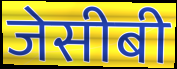
जेसीबी